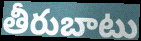
తీరుబాటు